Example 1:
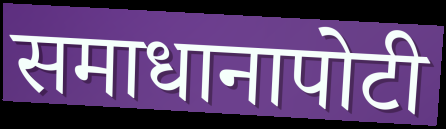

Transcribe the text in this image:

समाधानापोटी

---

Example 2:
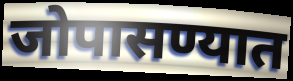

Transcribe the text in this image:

जोपासण्यात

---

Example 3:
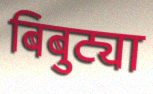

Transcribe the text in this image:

बिबुट्या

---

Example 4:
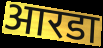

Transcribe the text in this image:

आरडा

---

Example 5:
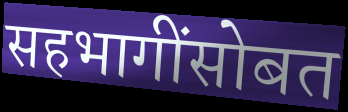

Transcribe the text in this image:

सहभागींसोबत